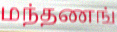
மந்தணங்